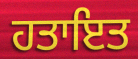
ਹਤਾਇਤ